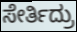
ಸೇರ್ತಿದ್ರು